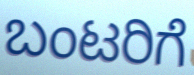
ಬಂಟರಿಗೆ